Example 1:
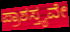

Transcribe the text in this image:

ಪ್ರಾಶಸ್ತ್ಯವೇ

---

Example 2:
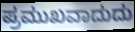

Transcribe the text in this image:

ಪ್ರಮುಖವಾದುದು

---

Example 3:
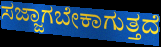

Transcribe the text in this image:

ಸಜ್ಜಾಗಬೇಕಾಗುತ್ತದೆ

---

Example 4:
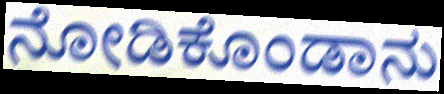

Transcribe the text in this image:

ನೋಡಿಕೊಂಡಾನು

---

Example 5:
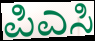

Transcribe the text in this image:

ಪಿಎಸಿ